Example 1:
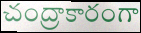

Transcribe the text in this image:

చంద్రాకారంగా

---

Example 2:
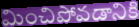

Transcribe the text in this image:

మించిపోవడానికి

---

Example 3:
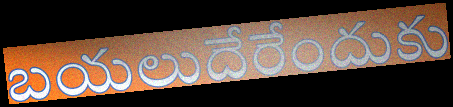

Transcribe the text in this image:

బయలుదేరేందుకు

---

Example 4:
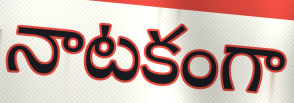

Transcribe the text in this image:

నాటకంగా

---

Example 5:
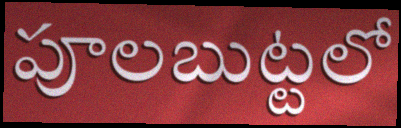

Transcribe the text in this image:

పూలబుట్టలో